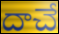
దాచే